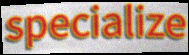
specialize